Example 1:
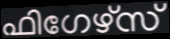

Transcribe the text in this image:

ഫിഗേഴ്സ്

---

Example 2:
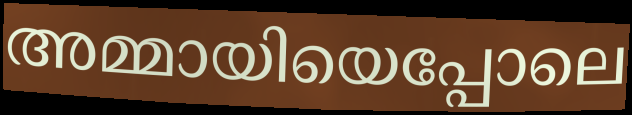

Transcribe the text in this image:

അമ്മായിയെപ്പോലെ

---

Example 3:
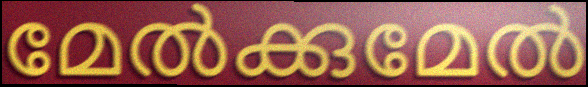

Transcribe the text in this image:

മേൽക്കുമേൽ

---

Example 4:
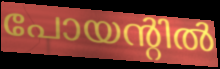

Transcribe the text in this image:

പോയന്റിൽ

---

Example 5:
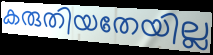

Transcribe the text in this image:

കരുതിയതേയില്ല